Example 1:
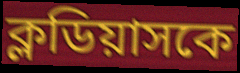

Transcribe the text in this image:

ক্লডিয়াসকে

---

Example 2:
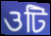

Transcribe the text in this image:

ওটি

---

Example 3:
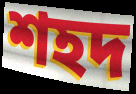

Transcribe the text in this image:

শহদ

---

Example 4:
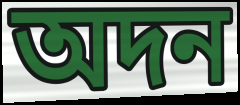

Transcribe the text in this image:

অদন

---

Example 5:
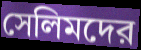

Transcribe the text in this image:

সেলিমদের